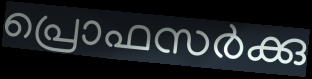
പ്രൊഫസർക്കു